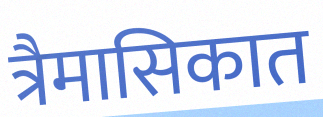
त्रैमासिकात